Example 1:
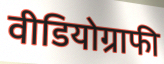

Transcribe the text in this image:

वीडियोग्राफी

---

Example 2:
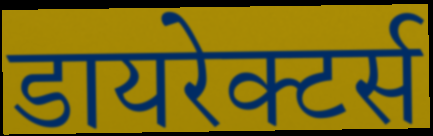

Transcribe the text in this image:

डायरेक्टर्स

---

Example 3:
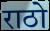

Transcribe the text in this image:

राठो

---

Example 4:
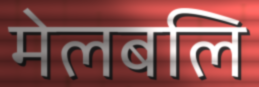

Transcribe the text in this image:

मेलबलि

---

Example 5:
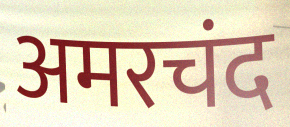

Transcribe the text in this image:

अमरचंद